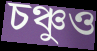
চঞ্চুও